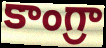
కాంగ్రా